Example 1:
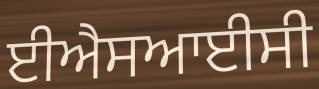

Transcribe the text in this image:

ਈਐਸਆਈਸੀ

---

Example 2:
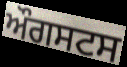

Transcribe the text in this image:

ਔਗਸਟਸ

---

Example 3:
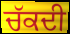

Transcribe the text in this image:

ਚੱਕਦੀ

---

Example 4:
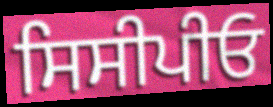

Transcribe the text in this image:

ਸਿਸੀਪੀਓ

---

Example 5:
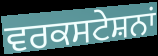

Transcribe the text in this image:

ਵਰਕਸਟੇਸ਼ਨਾਂ